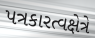
પત્રકારત્વક્ષેત્રે